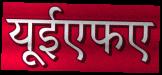
यूईएफए